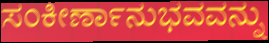
ಸಂಕೀರ್ಣಾನುಭವವನ್ನು